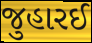
જુહારઈ